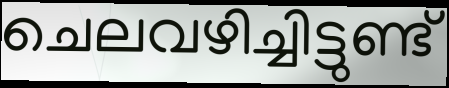
ചെലവഴിച്ചിട്ടുണ്ട്